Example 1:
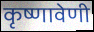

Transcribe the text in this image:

कृष्णावेणी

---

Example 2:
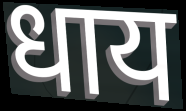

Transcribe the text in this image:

धाय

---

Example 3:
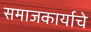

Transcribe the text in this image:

समाजकार्याचे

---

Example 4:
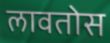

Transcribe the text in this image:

लावतोस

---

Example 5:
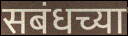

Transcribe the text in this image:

सबंधच्या